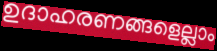
ഉദാഹരണങ്ങളെല്ലാം